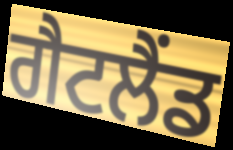
ਗੈਟਲੈਂਡ